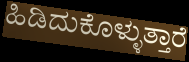
ಹಿಡಿದುಕೊಳ್ಳುತ್ತಾರೆ